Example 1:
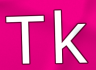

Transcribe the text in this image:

Tk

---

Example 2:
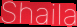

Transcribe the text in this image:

Shaila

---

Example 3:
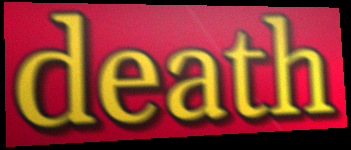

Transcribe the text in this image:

death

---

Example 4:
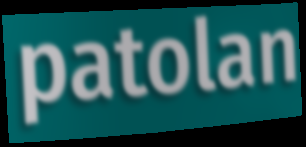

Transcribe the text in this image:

patolan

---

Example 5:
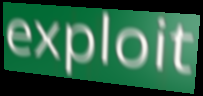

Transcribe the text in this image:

exploit